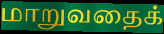
மாறுவதைக்